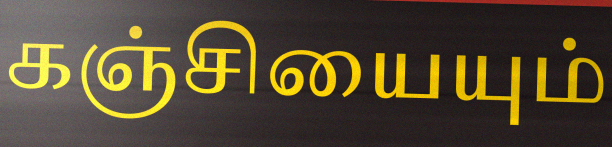
கஞ்சியையும்